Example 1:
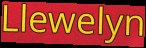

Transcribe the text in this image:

Llewelyn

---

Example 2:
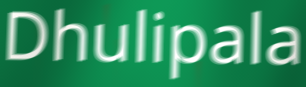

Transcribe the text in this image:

Dhulipala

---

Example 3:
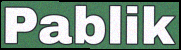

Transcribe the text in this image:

Pablik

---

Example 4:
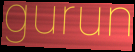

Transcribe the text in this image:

gurun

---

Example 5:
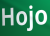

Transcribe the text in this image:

Hojo